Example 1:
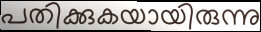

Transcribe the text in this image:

പതിക്കുകയായിരുന്നു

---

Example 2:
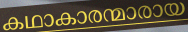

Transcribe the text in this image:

കഥാകാരന്മാരായ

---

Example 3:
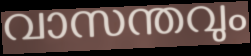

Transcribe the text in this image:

വാസന്തവും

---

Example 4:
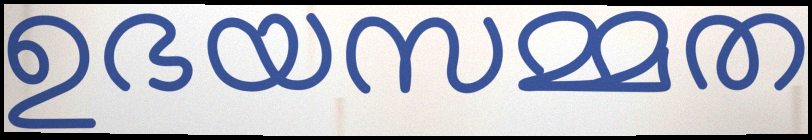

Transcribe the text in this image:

ഉഭയസമ്മത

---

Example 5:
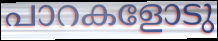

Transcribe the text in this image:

പാറകളോടു